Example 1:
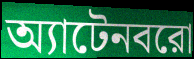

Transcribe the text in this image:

অ্যাটেনবরো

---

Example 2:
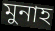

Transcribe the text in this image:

মুনাহ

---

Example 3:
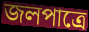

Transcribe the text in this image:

জলপাত্রে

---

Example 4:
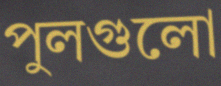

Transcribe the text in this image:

পুলগুলো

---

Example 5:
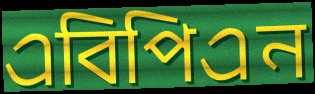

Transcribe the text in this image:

এবিপিএন